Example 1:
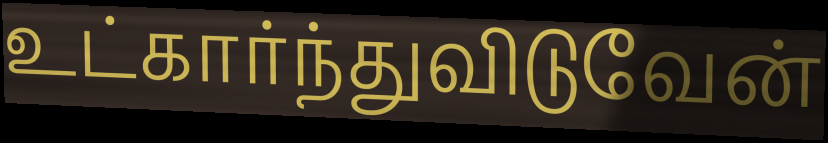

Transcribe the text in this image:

உட்கார்ந்துவிடுவேன்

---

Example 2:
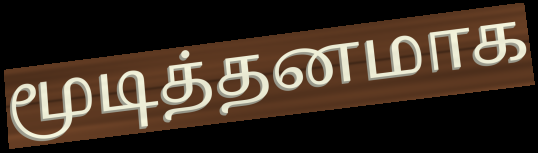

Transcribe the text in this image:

மூடித்தனமாக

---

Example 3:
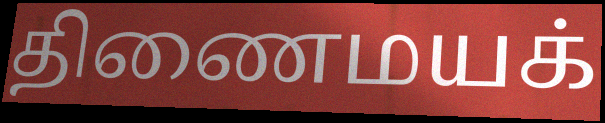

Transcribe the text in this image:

திணைமயக்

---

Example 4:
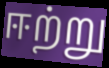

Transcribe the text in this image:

ஈற்று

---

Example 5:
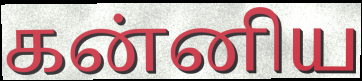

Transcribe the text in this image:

கன்னிய